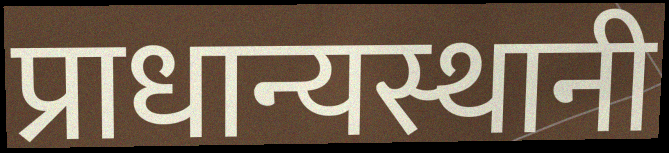
प्राधान्यस्थानी